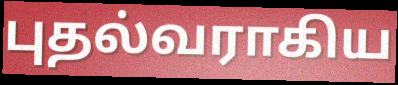
புதல்வராகிய